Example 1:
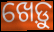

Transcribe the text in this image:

ଖେଡ଼ୁ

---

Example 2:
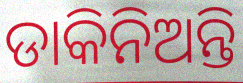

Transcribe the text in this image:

ଡାକିନିଅନ୍ତି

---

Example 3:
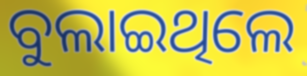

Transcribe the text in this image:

ବୁଲାଇଥିଲେ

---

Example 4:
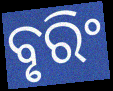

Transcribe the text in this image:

ବୃରିଂ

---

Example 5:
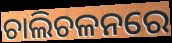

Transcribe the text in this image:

ଚାଲିଚଳନରେ